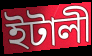
ইটালী